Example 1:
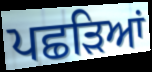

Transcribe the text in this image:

ਪਛੜਿਆਂ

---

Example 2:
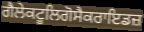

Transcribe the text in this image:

ਗੈਲੇਕਟੂਲਿਗੋਸੈਕਰਾਇਡਜ਼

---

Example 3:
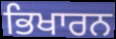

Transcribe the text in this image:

ਭਿਖਾਰਨ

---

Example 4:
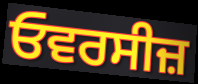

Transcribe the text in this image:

ਓਵਰਸੀਜ਼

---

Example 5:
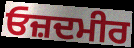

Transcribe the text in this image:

ਓਜ਼ਦਮੀਰ